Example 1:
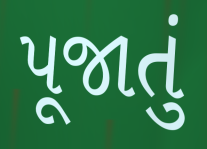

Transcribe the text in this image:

પૂજાતું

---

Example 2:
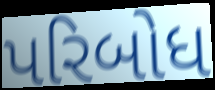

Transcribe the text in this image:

પરિબોધ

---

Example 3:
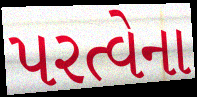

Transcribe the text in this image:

પરત્વેના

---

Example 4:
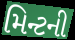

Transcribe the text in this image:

મિન્ટની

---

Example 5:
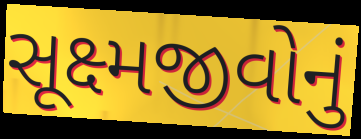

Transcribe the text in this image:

સૂક્ષ્મજીવોનું